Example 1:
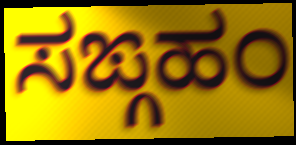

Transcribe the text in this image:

ಸಙ್ಗಹಂ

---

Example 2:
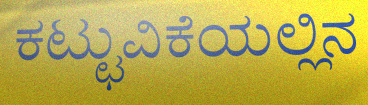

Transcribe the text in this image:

ಕಟ್ಟುವಿಕೆಯಲ್ಲಿನ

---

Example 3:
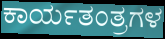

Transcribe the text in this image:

ಕಾರ್ಯತಂತ್ರಗಳ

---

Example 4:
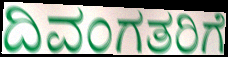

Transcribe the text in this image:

ದಿವಂಗತರಿಗೆ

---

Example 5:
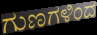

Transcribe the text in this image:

ಗುಣಗಳಿಂದ